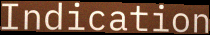
Indication